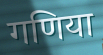
गणिया